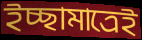
ইচ্ছামাত্রেই